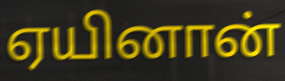
ஏயினான்